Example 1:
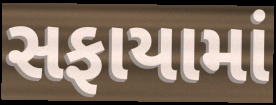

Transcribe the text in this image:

સફાયામાં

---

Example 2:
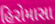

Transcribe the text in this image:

હિરોમાસા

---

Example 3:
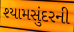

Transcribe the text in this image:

શ્યામસુંદરની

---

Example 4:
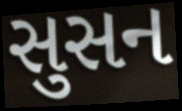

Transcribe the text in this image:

સુસન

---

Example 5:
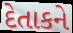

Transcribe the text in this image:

દેતાકને